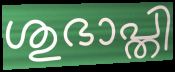
ശുഭാപ്തി